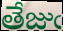
తేజుఁ